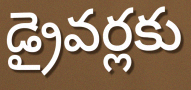
డ్రైవర్లకు